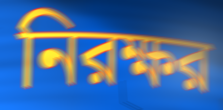
নিরক্ষর